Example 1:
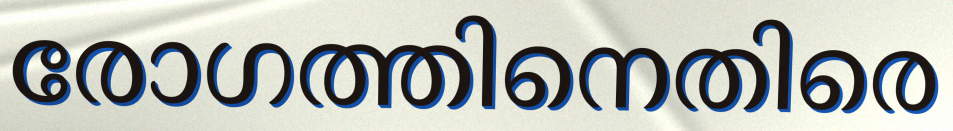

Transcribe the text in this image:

രോഗത്തിനെതിരെ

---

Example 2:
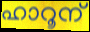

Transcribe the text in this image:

ഹാറൂന്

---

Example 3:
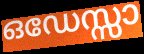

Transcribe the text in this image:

ഒഡേസ്സാ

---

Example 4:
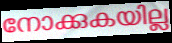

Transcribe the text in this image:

നോക്കുകയില്ല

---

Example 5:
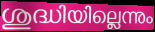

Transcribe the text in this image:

ശുദ്ധിയില്ലെന്നും